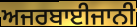
ਅਜਰਬਾਈਜਾਨੀ